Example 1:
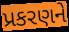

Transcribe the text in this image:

પ્રકરણને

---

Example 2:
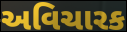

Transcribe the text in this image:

અવિચારક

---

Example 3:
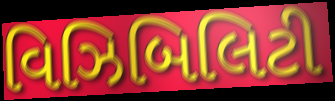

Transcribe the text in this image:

વિઝિબિલિટી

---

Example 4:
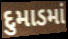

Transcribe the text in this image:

દુમાડમાં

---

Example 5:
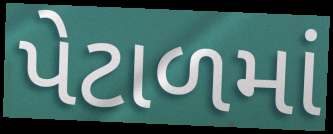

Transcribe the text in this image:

પેટાળમાં